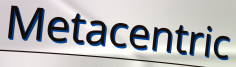
Metacentric